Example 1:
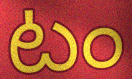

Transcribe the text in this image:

టం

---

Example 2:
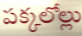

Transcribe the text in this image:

పక్కలోల్లు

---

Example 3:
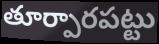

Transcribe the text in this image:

తూర్పారపట్టు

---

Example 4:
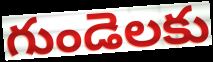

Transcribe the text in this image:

గుండెలకు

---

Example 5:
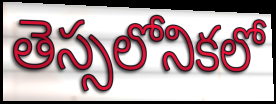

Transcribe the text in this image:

తెస్సలోనికలో